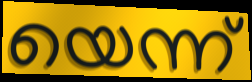
യെന്ന്